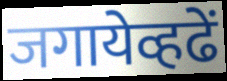
जगायेव्हढें